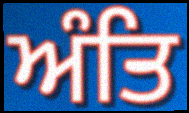
ਅੰਤਿ